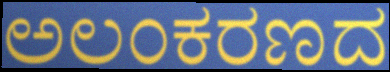
ಅಲಂಕರಣದ